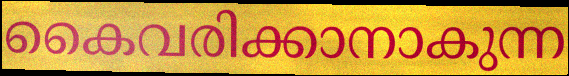
കൈവരിക്കാനാകുന്ന